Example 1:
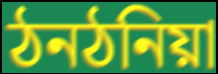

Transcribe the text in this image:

ঠনঠনিয়া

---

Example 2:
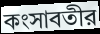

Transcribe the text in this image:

কংসাবতীর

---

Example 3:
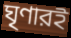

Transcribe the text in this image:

ঘৃণারই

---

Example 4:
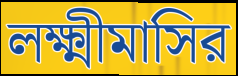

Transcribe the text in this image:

লক্ষ্মীমাসির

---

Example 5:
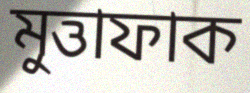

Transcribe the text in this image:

মুত্তাফাক